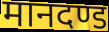
मानदण्ड